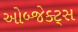
ઓબ્જેક્ટ્સ